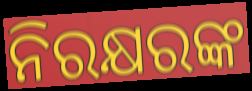
ନିରକ୍ଷରଙ୍କ